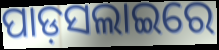
ପାଡ଼ସଲାଇରେ